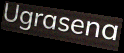
Ugrasena